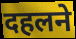
दहलने